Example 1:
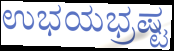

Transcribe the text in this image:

ಉಭಯಭ್ರಷ್ಟ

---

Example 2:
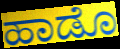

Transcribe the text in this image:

ಹಾಡೊ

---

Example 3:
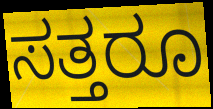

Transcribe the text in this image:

ಸತ್ತರೂ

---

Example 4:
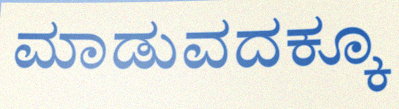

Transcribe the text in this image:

ಮಾಡುವದಕ್ಕೂ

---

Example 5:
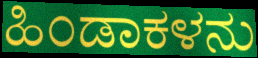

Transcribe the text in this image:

ಹಿಂಡಾಕಳನು